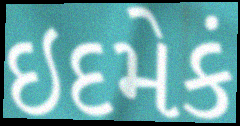
ઇદમેકં